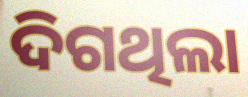
ଦିଗଥିଲା